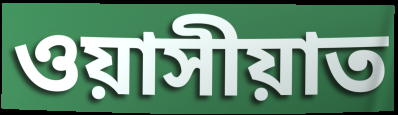
ওয়াসীয়াত